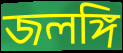
জলঙ্গি